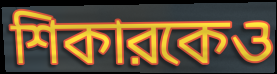
শিকারকেও